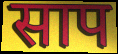
साप